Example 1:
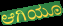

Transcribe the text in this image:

ಆಗಿಯೂ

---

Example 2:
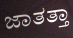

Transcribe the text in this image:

ಜಾತತ್ತಾ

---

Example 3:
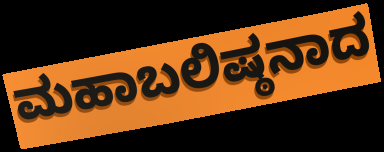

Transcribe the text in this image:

ಮಹಾಬಲಿಷ್ಠನಾದ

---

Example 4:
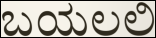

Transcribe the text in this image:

ಬಯಲಲಿ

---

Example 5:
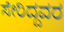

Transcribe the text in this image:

ಸೇರಿದ್ದವರ